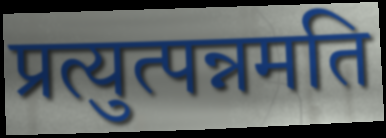
प्रत्युत्पन्नमति